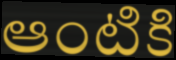
ఆంటికి